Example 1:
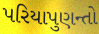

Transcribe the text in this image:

પરિયાપુણન્તો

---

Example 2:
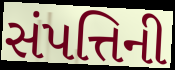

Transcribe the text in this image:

સંપત્તિની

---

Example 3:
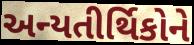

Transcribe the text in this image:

અન્યતીર્થિકોને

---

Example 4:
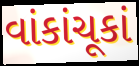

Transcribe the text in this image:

વાંકાંચૂકાં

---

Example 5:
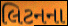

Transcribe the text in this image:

લિટનના